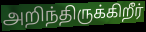
அறிந்திருக்கிறீர்